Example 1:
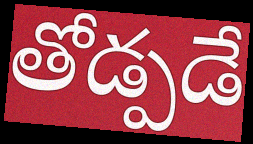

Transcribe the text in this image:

తోడ్పడే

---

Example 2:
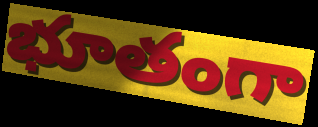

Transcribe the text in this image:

భూతంగా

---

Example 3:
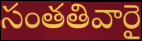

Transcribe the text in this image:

సంతతివారై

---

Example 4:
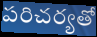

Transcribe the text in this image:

పరిచర్యతో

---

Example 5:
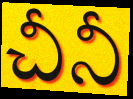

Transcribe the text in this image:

చీనీ